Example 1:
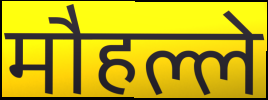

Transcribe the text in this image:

मौहल्ले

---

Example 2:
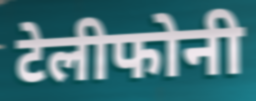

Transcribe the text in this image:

टेलीफोनी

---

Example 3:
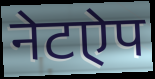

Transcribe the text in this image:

नेटऐप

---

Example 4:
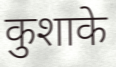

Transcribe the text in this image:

कुशाके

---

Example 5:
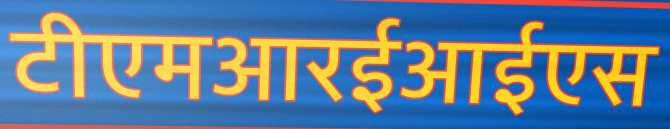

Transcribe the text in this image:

टीएमआरईआईएस